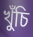
খুঁচি